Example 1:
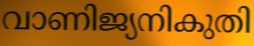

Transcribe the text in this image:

വാണിജ്യനികുതി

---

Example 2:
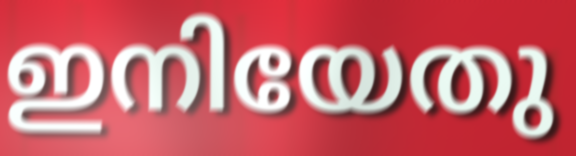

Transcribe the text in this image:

ഇനിയേതു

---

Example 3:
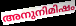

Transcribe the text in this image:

അനുനിമിഷം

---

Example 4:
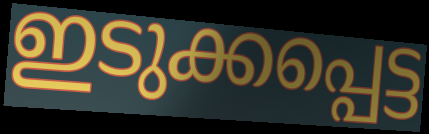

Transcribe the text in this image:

ഇടുക്കപ്പെട്ട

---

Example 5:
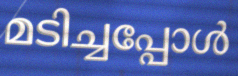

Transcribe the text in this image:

മടിച്ചപ്പോൾ